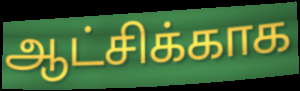
ஆட்சிக்காக